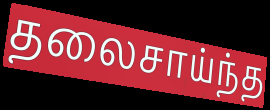
தலைசாய்ந்த